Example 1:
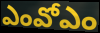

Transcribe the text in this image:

ఎంవోఎం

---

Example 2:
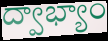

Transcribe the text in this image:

ద్వాభ్యాం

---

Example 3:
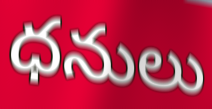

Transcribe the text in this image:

ధనులు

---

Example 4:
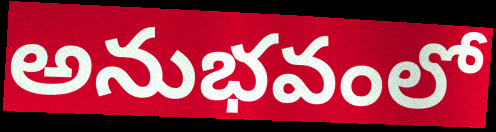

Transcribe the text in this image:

అనుభవంలో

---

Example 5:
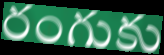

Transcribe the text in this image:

రంగుకు